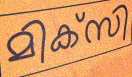
മിക്‌സി